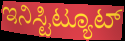
ಇನಿಸ್ಟಿಟ್ಯೂಟ್